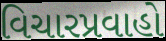
વિચારપ્રવાહો